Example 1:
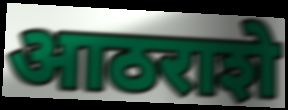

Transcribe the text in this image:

आठराशे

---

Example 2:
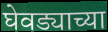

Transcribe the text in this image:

घेवड्याच्या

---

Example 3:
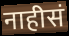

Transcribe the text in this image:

नाहीसं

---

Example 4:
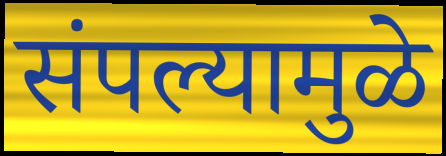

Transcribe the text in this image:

संपल्यामुळे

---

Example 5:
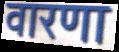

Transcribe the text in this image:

वारणा